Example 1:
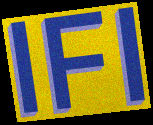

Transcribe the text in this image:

IFI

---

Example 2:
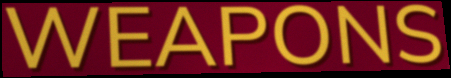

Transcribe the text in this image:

WEAPONS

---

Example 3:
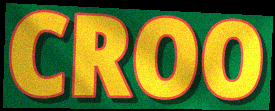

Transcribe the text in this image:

CROO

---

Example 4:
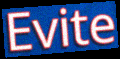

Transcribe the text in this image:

Evite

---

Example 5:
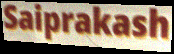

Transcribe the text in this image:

Saiprakash